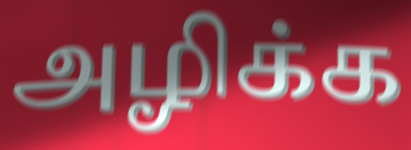
அழிக்க